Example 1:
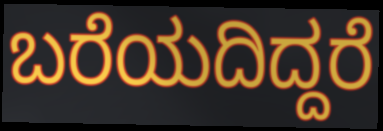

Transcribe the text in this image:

ಬರೆಯದಿದ್ದರೆ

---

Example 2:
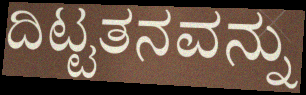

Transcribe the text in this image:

ದಿಟ್ಟತನವನ್ನು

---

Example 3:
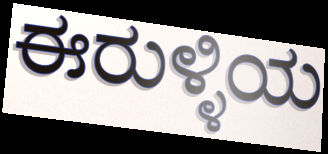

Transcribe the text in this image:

ಈರುಳ್ಳಿಯ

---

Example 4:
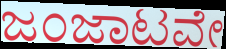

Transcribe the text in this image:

ಜಂಜಾಟವೇ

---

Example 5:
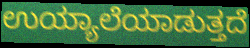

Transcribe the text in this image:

ಉಯ್ಯಾಲೆಯಾಡುತ್ತದೆ